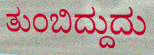
ತುಂಬಿದ್ದುದು